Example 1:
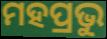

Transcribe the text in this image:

ମହପ୍ରଭୁ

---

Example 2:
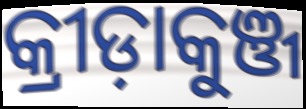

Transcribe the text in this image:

କ୍ରୀଡ଼ାକୁଞ୍ଜ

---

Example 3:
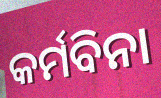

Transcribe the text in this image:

କର୍ମବିନା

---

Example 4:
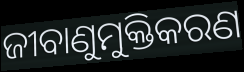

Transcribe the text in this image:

ଜୀବାଣୁମୁକ୍ତିକରଣ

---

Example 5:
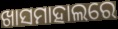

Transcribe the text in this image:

ଖାସମାହାଲରେ